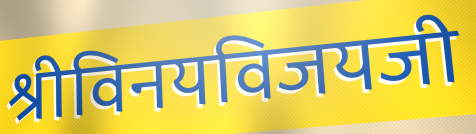
श्रीविनयविजयजी